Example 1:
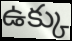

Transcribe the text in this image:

ఉక్కు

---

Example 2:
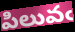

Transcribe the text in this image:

పిలువఁ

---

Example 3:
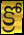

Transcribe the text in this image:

క్రో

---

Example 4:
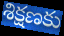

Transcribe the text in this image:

శిక్షణకు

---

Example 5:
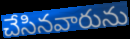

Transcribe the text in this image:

చేసినవారును